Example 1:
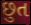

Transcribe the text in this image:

છુત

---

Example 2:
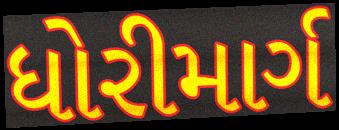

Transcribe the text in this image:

ધોરીમાર્ગ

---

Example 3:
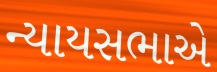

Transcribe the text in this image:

ન્યાયસભાએ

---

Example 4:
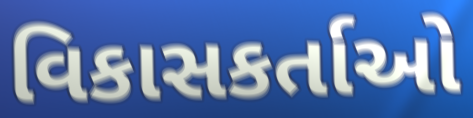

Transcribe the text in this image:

વિકાસકર્તાઓ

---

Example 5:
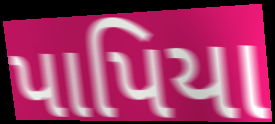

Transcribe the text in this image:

પાપિયા